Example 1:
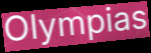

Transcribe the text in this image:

Olympias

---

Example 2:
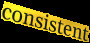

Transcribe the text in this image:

consistent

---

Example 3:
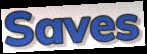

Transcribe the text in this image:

Saves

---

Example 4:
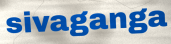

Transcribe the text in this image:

sivaganga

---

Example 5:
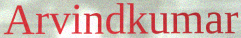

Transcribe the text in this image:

Arvindkumar